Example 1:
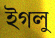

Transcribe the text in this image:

ইগলু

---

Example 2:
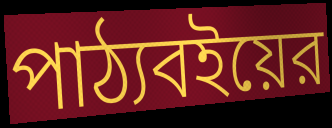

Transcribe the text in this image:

পাঠ্যবইয়ের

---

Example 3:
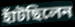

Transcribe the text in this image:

হাঁটছিলেন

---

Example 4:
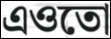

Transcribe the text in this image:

এওতো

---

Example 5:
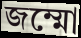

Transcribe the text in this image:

জম্মো